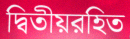
দ্বিতীয়রহিত